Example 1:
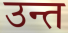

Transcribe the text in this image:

उन्त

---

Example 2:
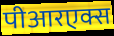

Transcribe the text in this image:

पीआरएक्स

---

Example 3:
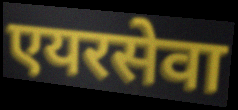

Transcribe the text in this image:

एयरसेवा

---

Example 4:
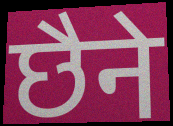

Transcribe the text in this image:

छैने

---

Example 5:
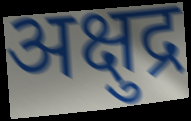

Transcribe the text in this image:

अक्षुद्र